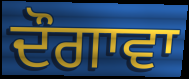
ਦੌਗਾਵਾ